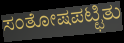
ಸಂತೋಷಪಟ್ಟಿತು